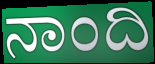
ನಾಂದಿ